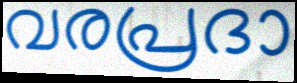
വരപ്രദാ